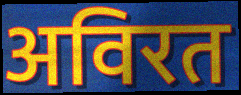
अविरत